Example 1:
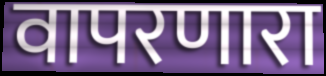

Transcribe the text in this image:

वापरणारा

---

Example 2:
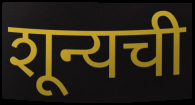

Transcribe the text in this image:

शून्यची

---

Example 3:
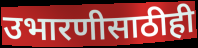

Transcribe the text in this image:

उभारणीसाठीही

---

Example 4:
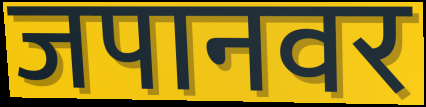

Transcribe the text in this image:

जपानवर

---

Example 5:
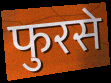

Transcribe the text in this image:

फुरसे